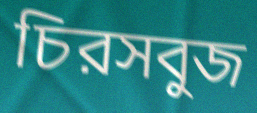
চিরসবুজ